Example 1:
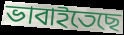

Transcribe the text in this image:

ভাবাইতেছে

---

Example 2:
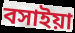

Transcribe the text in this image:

বসাইয়া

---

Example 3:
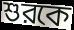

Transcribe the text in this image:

শুরকে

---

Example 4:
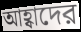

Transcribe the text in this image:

আহ্বাদের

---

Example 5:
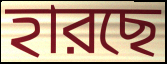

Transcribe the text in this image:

হারছে